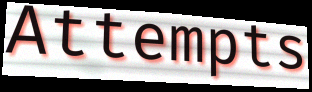
Attempts